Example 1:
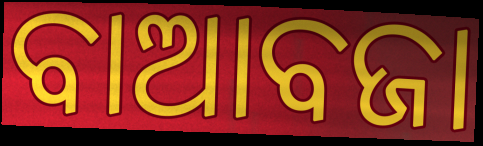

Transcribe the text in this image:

ବାଆବଜା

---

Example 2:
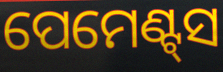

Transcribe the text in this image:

ପେମେଣ୍ଟ୍‌ସ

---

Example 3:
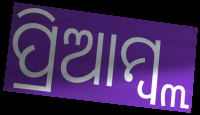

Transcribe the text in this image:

ପ୍ରିଆମ୍ବ୍ଲ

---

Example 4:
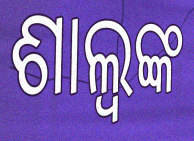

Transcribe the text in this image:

ଶାଲ୍ୱଙ୍କ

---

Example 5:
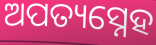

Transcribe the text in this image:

ଅପତ୍ୟସ୍ନେହ